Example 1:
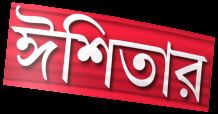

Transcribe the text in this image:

ঈশিতার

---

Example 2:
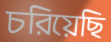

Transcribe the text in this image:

চরিয়েছি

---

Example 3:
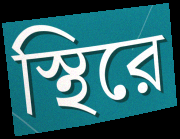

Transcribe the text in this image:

স্থিরে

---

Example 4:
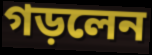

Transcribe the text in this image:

গড়লেন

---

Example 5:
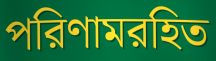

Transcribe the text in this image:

পরিণামরহিত